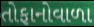
તોફાનોવાળા